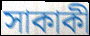
সাকাকী